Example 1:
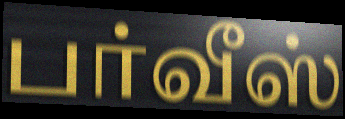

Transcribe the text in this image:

பர்வீஸ்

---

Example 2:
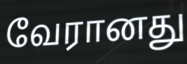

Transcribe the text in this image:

வேரானது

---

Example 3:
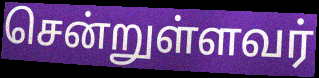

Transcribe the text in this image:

சென்றுள்ளவர்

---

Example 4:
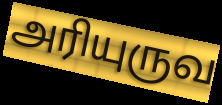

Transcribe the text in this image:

அரியுருவ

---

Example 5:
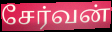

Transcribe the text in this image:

சேர்வன்